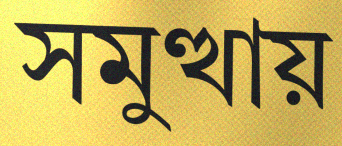
সমুত্থায়